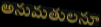
అనుమతులనూ